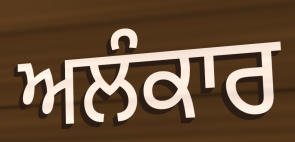
ਅਲੰਕਾਰ